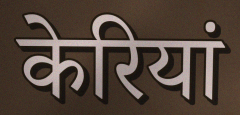
केरियां